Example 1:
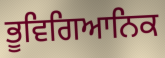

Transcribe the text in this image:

ਭੂਵਿਗਿਆਨਿਕ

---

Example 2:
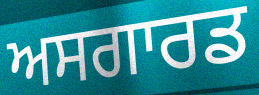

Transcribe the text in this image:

ਅਸਗਾਰਡ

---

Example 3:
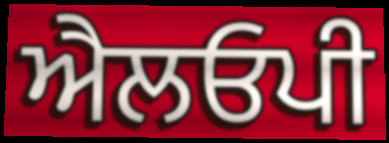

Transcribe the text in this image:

ਐਲਓਪੀ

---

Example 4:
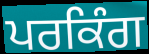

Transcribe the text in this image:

ਪਰਕਿੰਗ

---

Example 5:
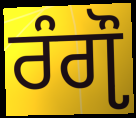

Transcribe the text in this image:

ਰੰਗੵੌ